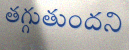
తగ్గుతుందని